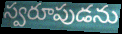
స్వరూపుడను